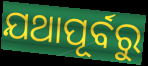
ଯଥାପୂର୍ବରୁ